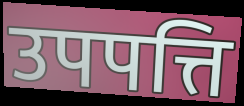
उपपत्ति